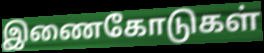
இணைகோடுகள்